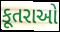
કૂતરાઓ